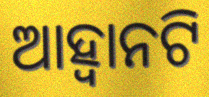
ଆହ୍ଵାନଟି